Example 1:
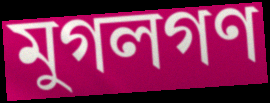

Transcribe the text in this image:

মুগলগণ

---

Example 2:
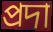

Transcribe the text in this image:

প্রদা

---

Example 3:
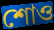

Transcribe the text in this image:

শোও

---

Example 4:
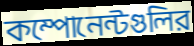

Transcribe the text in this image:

কম্পোনেন্টগুলির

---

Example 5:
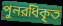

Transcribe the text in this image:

পুনরধিকৃত